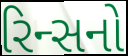
રિન્સનો